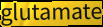
glutamate